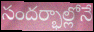
సందర్భాల్లోనే